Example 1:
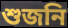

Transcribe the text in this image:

শুজনি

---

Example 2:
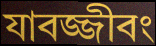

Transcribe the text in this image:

যাবজ্জীবং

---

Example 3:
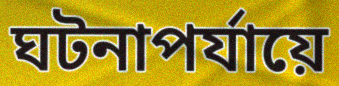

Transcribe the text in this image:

ঘটনাপর্যায়ে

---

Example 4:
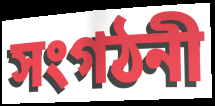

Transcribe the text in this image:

সংগঠনী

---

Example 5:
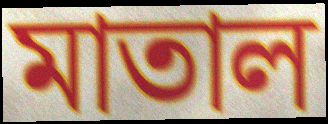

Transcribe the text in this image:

মাতাল